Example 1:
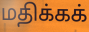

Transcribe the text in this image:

மதிக்கக்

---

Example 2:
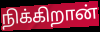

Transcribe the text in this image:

நிக்கிறான்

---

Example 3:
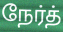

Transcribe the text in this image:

நேர்த்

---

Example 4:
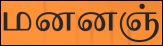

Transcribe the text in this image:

மனனஞ்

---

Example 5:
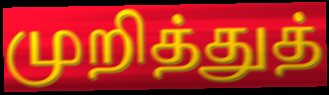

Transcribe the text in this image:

முறித்துத்